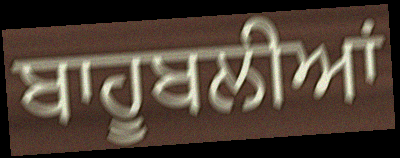
ਬਾਹੂਬਲੀਆਂ